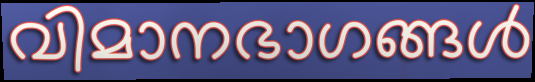
വിമാനഭാഗങ്ങൾ